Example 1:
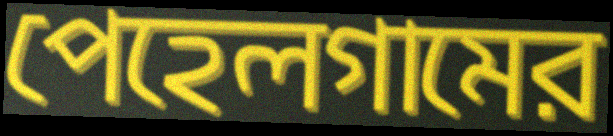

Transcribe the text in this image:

পেহেলগামের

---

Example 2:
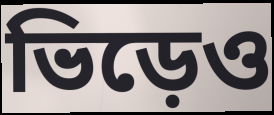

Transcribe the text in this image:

ভিড়েও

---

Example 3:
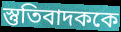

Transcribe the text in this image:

স্তুতিবাদককে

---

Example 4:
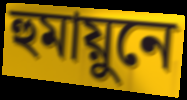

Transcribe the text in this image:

হুমায়ুনে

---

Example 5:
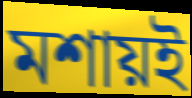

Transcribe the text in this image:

মশায়ই